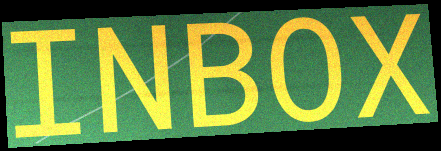
INBOX